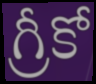
గ్రీకో